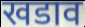
खडाव